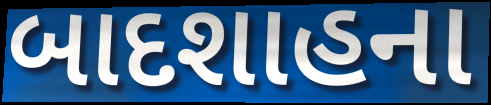
બાદશાહના